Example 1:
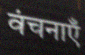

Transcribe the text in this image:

वंचनाएँ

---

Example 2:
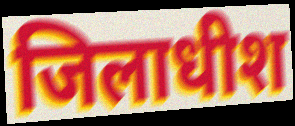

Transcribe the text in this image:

जिलाधीश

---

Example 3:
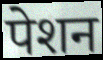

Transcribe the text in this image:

पेशन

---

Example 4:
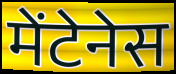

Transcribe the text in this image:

मेंटेनेस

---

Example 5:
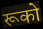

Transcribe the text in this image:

रूको